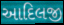
આદિલજી